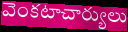
వెంకటాచార్యులు